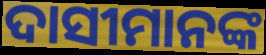
ଦାସୀମାନଙ୍କ